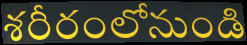
శరీరంలోనుండి